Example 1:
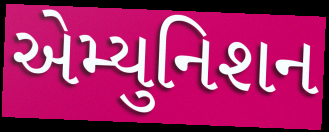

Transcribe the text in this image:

એમ્યુનિશન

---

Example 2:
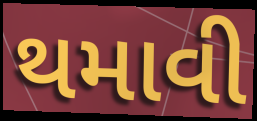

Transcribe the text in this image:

થમાવી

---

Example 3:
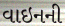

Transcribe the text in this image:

વાઇનની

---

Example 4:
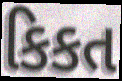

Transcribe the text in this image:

કિકત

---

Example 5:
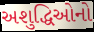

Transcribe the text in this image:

અશુદ્ધિઓનો